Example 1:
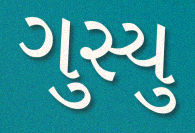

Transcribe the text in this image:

ગુસ્યુ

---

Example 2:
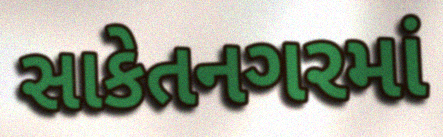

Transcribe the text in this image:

સાકેતનગરમાં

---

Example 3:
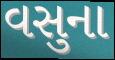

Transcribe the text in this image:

વસુના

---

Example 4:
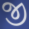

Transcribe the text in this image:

જી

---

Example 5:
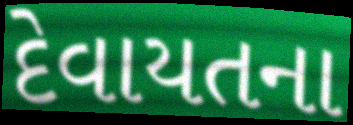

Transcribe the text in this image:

દેવાયતના